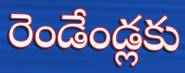
రెండేండ్లకు